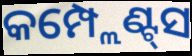
କମ୍ପ୍ଲେଣ୍ଟ୍‌ସ